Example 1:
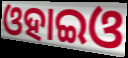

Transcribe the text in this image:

ଓହାଇଓ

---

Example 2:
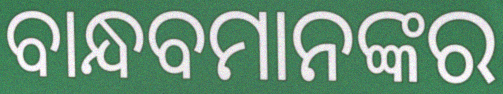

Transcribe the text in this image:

ବାନ୍ଧବମାନଙ୍କର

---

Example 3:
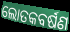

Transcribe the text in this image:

ଲୋତକବର୍ଷଣ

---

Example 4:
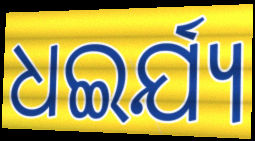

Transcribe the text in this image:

ଧଇର୍ଯ୍ୟ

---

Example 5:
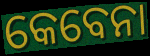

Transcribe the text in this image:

କେବେନା